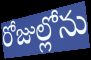
రోజుల్లోను